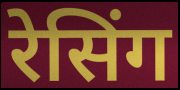
रेसिंग